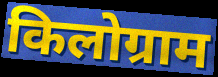
किलोग्राम